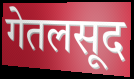
गेतलसूद